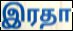
இரதா